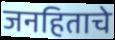
जनहिताचे